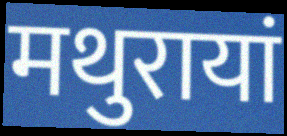
मथुरायां